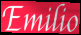
Emilio